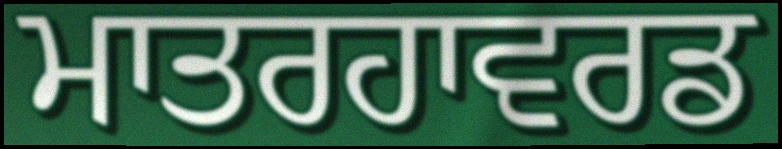
ਮਾਤਰਹਾਵਰਡ